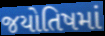
જયોતિષમાં